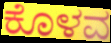
ಕೊಳವ